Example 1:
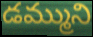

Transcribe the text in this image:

డమ్ముని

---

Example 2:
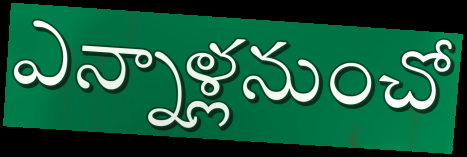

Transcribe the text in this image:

ఎన్నాళ్లనుంచో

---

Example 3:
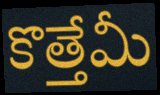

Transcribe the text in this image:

కొత్తేమీ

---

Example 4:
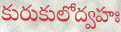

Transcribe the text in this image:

కురుకులోద్వహః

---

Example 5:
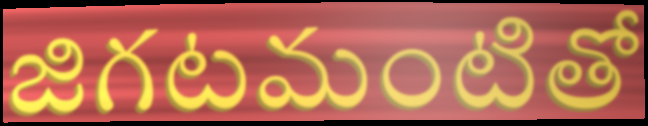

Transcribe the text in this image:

జిగటమంటితో